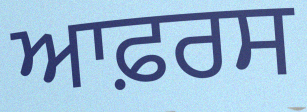
ਆਫ਼ਰਸ